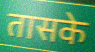
तासके